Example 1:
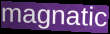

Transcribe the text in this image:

magnatic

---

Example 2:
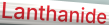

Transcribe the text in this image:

Lanthanide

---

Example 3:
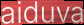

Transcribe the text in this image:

aiduva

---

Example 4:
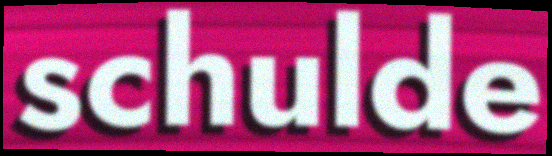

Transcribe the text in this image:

schulde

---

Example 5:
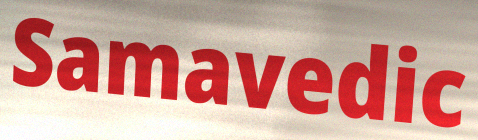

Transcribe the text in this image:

Samavedic